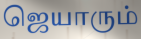
ஜெயாரும்